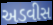
અડવીસ